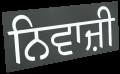
ਨਿਵਾਜ਼ੀ